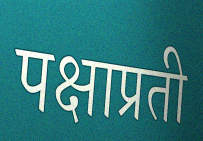
पक्षाप्रती